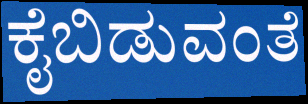
ಕೈಬಿಡುವಂತೆ